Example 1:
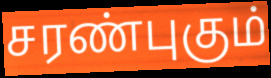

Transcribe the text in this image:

சரண்புகும்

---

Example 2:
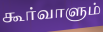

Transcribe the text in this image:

கூர்வாளும்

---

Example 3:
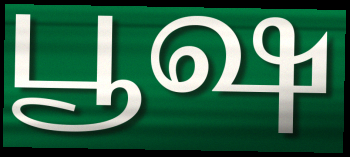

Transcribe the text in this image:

பூஷ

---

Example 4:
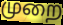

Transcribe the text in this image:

முறை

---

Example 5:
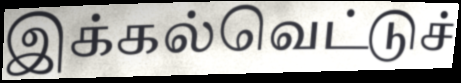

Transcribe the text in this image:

இக்கல்வெட்டுச்